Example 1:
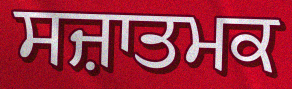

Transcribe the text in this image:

ਸਜ਼ਾਤਮਕ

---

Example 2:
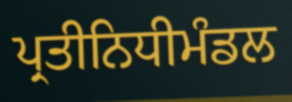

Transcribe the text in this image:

ਪ੍ਰਤੀਨਿਧੀਮੰਡਲ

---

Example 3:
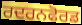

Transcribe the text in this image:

ਰਦਰਨਫੋਰਡ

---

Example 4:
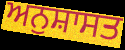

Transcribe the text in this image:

ਅਨੁਸ਼ਾਸਤ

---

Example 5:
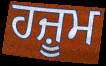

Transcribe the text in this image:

ਹਜ਼ੂਮ